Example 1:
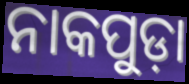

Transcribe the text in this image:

ନାକପୁଡ଼ା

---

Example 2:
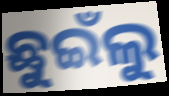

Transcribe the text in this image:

ଛୁଇଁଲୁ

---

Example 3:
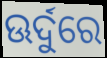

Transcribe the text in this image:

ଊର୍ଦୁରେ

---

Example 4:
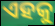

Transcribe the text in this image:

ଏହକୁ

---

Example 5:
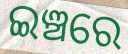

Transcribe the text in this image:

ଇଞ୍ଚରେ